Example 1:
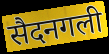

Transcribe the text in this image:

सैदनगली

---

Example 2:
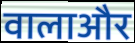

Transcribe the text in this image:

वालाऔर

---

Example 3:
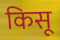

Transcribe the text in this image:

किसू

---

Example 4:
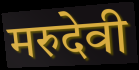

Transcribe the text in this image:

मरुदेवी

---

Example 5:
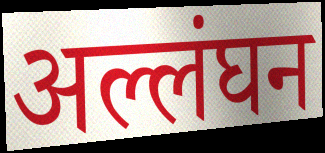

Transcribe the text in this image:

अल्लंघन